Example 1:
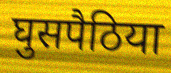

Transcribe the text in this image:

घुसपैठिया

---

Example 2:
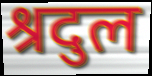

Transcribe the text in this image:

श्रदुल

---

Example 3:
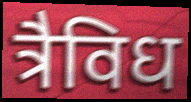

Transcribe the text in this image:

त्रैविध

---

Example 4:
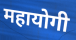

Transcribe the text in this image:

महायोगी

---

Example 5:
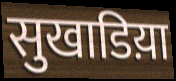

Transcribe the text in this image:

सुखाडिय़ा